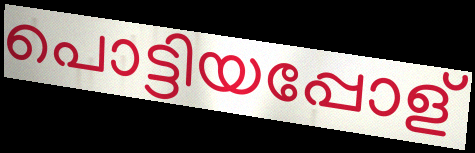
പൊട്ടിയപ്പോള്